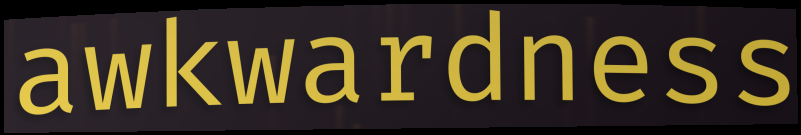
awkwardness